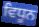
ਵਿਧੂਨ